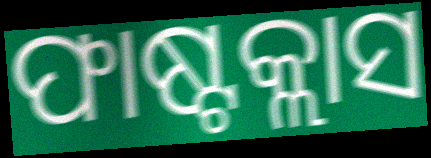
ଫାଷ୍ଟକ୍ଲାସ